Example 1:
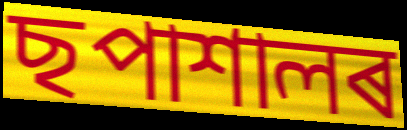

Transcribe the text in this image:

ছপাশালৰ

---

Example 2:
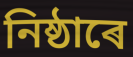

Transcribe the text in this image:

নিষ্ঠাৰে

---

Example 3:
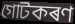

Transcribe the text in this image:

গোটকৰণ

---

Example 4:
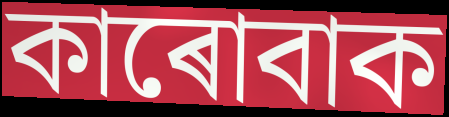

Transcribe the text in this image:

কাৰোবাক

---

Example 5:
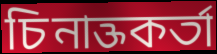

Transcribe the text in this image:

চিনাক্তকৰ্তা